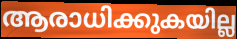
ആരാധിക്കുകയില്ല